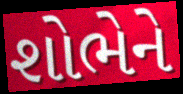
શોભેને